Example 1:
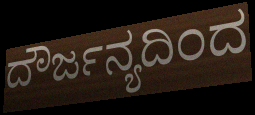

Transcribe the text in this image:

ದೌರ್ಜನ್ಯದಿಂದ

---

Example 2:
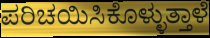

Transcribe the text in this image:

ಪರಿಚಯಿಸಿಕೊಳ್ಳುತ್ತಾಳೆ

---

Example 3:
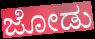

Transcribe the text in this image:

ಜೋಡು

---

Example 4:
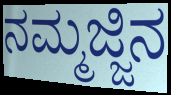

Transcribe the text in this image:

ನಮ್ಮಜ್ಜಿನ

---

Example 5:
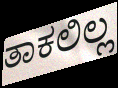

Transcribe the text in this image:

ತಾಕಲಿಲ್ಲ